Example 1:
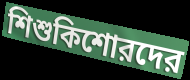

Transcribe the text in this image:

শিশুকিশোরদের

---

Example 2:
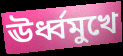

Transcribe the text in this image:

ঊর্ধ্বমুখে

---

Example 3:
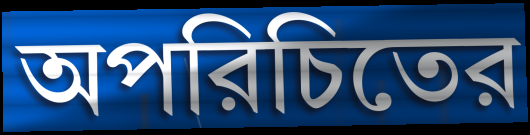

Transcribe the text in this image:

অপরিচিতের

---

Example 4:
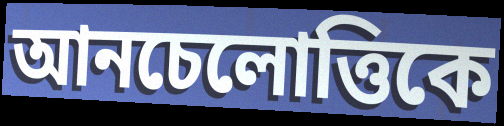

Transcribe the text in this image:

আনচেলোত্তিকে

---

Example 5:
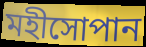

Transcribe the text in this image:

মহীসোপান